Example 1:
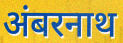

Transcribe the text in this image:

अंबरनाथ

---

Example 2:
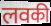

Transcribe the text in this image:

लवकी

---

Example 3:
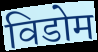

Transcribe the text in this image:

विडोम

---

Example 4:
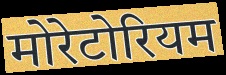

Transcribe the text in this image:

मोरेटोरियम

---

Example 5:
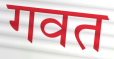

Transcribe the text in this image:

गवत